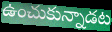
ఉంచుకున్నాడట